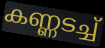
കണ്ണടച്ച്